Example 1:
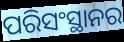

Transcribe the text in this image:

ପରିସଂସ୍ଥାନର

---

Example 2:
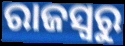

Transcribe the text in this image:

ରାଜସ୍ୱରୁ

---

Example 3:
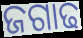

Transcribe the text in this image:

ଜଗାଢ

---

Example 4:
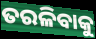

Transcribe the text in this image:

ତରଳିବାକୁ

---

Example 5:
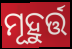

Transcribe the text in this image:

ମୂହୁର୍ତ୍ତ